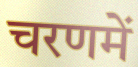
चरणमें